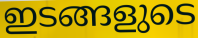
ഇടങ്ങളുടെ